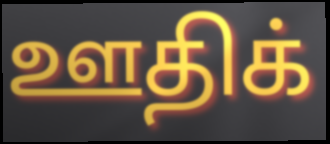
ஊதிக்